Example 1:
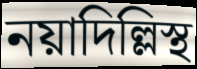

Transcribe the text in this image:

নয়াদিল্লিস্থ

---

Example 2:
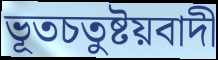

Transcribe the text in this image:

ভূতচতুষ্টয়বাদী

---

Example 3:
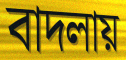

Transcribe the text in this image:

বাদলায়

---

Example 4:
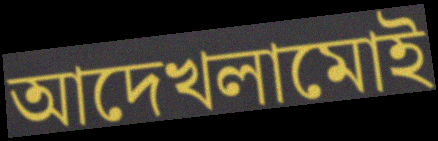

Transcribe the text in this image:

আদেখলামোই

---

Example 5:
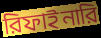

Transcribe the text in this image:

রিফাইনারি